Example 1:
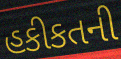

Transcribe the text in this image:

હકીકતની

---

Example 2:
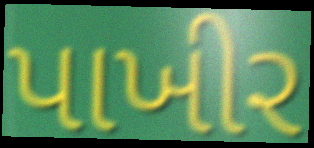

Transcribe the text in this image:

પાખીર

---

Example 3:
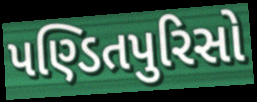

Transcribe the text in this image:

પણ્ડિતપુરિસો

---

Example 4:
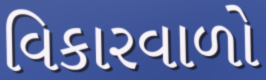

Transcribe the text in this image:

વિકારવાળો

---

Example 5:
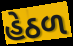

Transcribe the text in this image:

હેઠળ